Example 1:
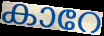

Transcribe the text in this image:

കാറേ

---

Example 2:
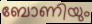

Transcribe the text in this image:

ബോണിയും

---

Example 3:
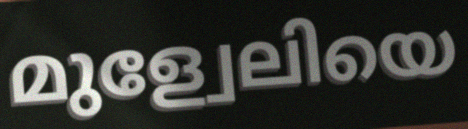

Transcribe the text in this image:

മുള്വേലിയെ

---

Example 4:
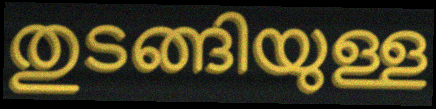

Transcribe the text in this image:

തുടങ്ങിയുള്ള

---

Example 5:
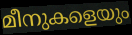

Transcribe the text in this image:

മീനുകളെയും